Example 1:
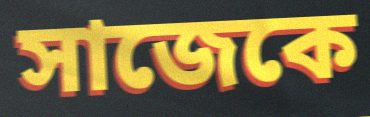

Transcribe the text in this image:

সাজেকে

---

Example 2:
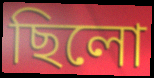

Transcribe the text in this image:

ছিলো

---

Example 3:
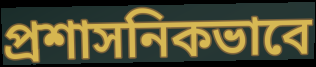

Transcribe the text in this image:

প্রশাসনিকভাবে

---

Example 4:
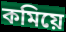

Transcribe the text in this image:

কমিয়ে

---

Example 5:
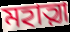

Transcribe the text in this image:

মহাত্মা